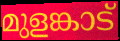
മുളങ്കാട്